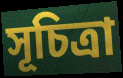
সূচিত্রা